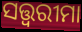
ସତ୍ତ୍ୱରୀମା